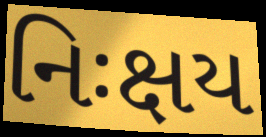
નિઃક્ષય